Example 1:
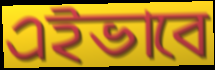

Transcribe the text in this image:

এইভাবে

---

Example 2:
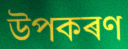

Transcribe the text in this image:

উপকৰণ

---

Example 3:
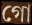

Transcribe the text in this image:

গো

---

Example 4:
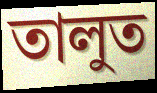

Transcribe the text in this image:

তালুত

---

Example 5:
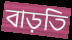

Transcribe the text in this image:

বাড়তি